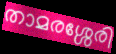
താമരശ്ശേരി